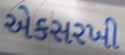
એકસરખી